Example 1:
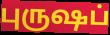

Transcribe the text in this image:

புருஷப்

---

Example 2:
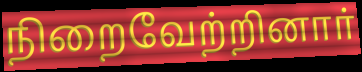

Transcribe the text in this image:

நிறைவேற்றினார்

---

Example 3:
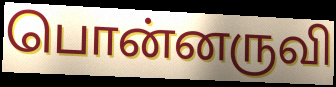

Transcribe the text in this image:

பொன்னருவி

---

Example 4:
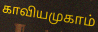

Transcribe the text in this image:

காவியமுகாம்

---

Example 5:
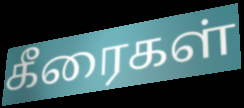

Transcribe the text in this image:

கீரைகள்